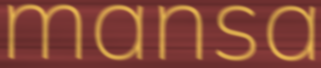
mansa